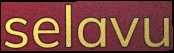
selavu